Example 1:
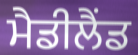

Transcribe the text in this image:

ਮੈਡੀਲੈਂਡ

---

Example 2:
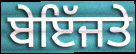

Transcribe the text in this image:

ਬੇਇੱਜਤੇ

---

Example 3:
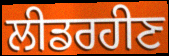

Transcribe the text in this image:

ਲੀਡਰਹੀਣ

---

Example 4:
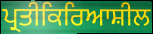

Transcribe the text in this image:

ਪ੍ਰਤੀਕਿਰਿਆਸ਼ੀਲ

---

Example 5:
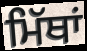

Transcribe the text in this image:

ਮਿੱਥਾਂ